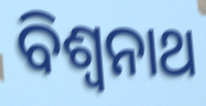
ବିଶ୍ୱନାଥ